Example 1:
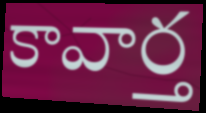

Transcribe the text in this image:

కావార్త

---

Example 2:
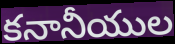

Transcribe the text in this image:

కనానీయుల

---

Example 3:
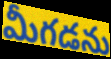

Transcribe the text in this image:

మీగడను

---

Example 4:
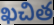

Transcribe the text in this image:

ఖచిత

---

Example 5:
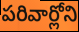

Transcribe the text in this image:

పరివార్లోని